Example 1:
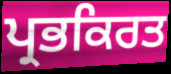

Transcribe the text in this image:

ਪ੍ਰਭਕਿਰਤ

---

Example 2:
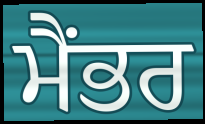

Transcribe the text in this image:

ਮੈਂਭਰ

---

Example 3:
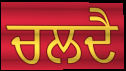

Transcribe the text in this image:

ਚਲਦੈ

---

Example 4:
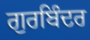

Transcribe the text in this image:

ਗੁਰਬਿੰਦਰ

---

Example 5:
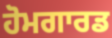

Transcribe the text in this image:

ਹੋਮਗਾਰਡ